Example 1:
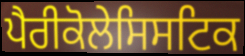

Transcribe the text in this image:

ਪੈਰੀਕੋਲੇਸਿਸਟਿਕ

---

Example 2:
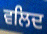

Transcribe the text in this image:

ਵਲਿਦ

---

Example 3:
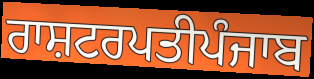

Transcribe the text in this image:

ਰਾਸ਼ਟਰਪਤੀਪੰਜਾਬ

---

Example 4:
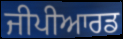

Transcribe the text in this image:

ਜੀਪੀਆਰਡ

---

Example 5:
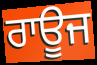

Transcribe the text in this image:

ਰਾਊਜ